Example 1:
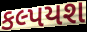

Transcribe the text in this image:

કલ્પયશ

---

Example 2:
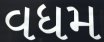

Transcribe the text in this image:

વધમ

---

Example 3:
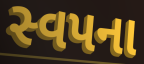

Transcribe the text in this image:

સ્વપના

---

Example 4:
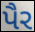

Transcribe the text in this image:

પૈર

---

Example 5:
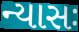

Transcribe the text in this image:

ન્યાસઃ